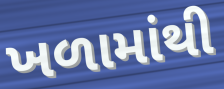
ખળામાંથી